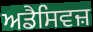
ਅਡੈਸਿਵਜ਼